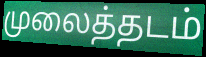
முலைத்தடம்